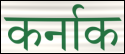
कर्नाक